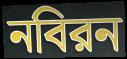
নবিরন